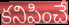
కనిపించే